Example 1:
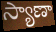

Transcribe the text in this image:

స్యాణా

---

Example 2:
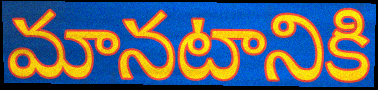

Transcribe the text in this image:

మానటానికి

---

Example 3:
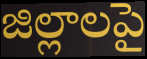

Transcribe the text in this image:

జిల్లాలపై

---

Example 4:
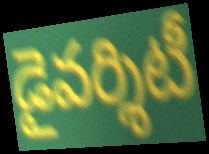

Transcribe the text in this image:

డైవర్శిటీ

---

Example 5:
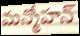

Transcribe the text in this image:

మన్మోహన్